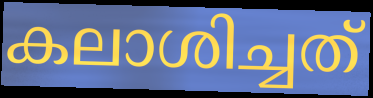
കലാശിച്ചത്